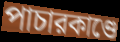
পাচারকাণ্ডে